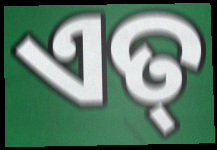
ଏତ୍